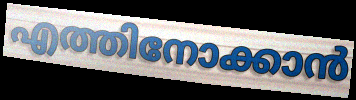
എത്തിനോക്കാൻ